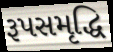
રૂપસમૃદ્ધિ